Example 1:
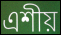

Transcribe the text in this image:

এশীয়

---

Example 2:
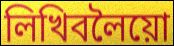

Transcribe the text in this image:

লিখিবলৈয়ো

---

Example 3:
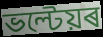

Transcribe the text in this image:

ভল্টেয়ৰ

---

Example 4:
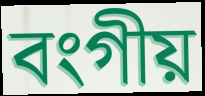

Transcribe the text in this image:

বংগীয়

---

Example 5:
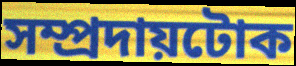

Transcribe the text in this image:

সম্প্ৰদায়টোক